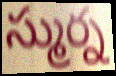
స్ముర్న